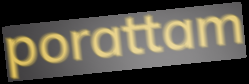
porattam